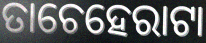
ତାଚେହେରାଟା